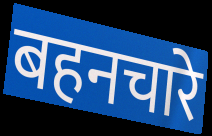
बहनचारे